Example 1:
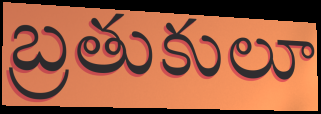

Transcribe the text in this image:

బ్రతుకులూ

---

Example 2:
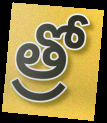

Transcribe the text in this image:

త్రో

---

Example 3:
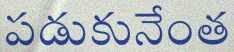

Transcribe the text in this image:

పడుకునేంత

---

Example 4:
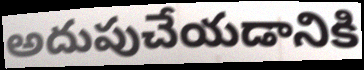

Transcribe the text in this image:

అదుపుచేయడానికి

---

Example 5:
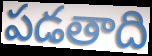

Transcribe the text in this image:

పడతాది